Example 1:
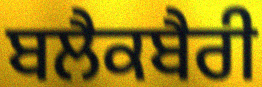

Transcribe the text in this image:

ਬਲੈਕਬੈਰੀ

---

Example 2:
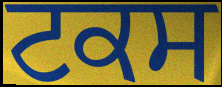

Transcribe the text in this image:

ਟਕਸ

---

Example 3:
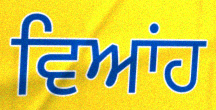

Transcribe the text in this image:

ਵਿਆਂਹ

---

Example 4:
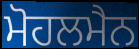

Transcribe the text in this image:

ਮੋਹਲਮੈਨ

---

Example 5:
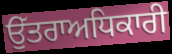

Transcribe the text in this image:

ਉੱਤਰਾਅਧਿਕਾਰੀ